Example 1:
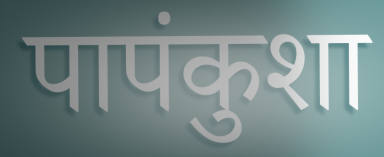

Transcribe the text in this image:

पापंकुशा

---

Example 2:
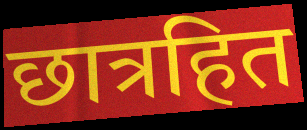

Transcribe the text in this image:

छात्रहित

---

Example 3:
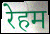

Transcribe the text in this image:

रेहम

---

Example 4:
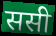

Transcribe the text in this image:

ससी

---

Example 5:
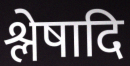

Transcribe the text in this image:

श्लेषादि